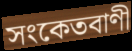
সংকেতবাণী